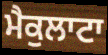
ਮੈਕੁਲਾਟਾ